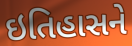
ઇતિહાસને